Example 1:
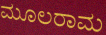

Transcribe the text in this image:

ಮೂಲರಾಮ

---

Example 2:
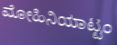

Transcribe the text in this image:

ಮೋಹಿನಿಯಾಟ್ಟಂ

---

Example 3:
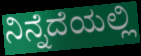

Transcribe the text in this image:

ನಿನ್ನೆದೆಯಲ್ಲಿ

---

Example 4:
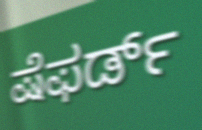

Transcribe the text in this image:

ಷೆಫರ್ಡ್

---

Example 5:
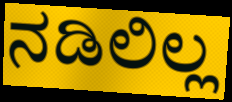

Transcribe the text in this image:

ನಡಿಲಿಲ್ಲ